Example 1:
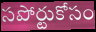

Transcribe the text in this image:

సపోర్టుకోసం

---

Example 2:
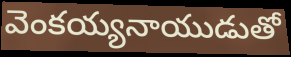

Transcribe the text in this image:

వెంకయ్యనాయుడుతో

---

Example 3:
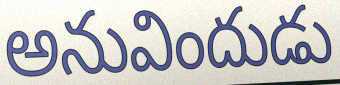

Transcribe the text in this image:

అనువిందుడు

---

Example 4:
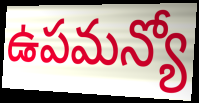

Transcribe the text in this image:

ఉపమన్యో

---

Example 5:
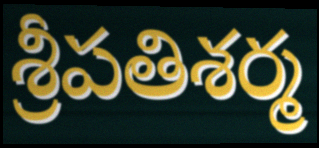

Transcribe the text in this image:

శ్రీపతిశర్మ